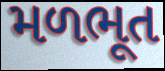
મળભૂત